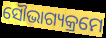
ସୌଭାଗ୍ୟକ୍ରମେ